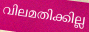
വിലമതിക്കില്ല